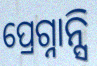
ପ୍ରେଗ୍ନାନ୍ସି